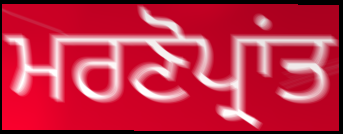
ਮਰਣੋਪ੍ਰਾਂਤ